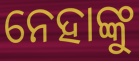
ନେହାଙ୍କୁ